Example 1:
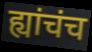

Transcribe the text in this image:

ह्यांचंच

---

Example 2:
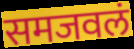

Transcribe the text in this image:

समजवलं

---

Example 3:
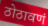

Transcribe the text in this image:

ठोठावणं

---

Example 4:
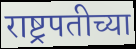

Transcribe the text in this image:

राष्ट्रपतीच्या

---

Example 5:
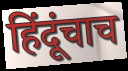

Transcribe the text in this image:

हिंदूंचाच